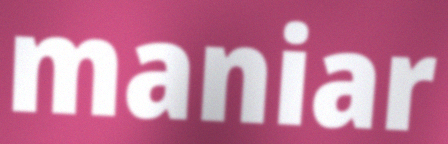
maniar